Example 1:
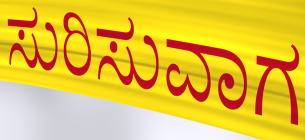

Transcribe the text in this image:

ಸುರಿಸುವಾಗ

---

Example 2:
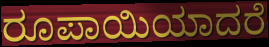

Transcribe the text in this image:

ರೂಪಾಯಿಯಾದರೆ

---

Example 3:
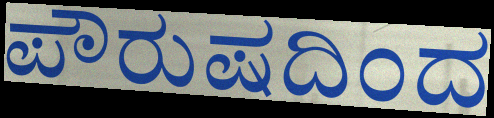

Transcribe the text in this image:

ಪೌರುಷದಿಂದ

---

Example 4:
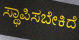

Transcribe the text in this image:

ಸ್ಥಾಪಿಸಬೇಕಿದೆ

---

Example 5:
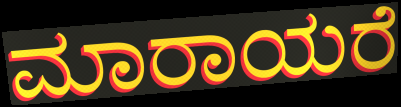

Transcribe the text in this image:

ಮಾರಾಯರೆ